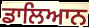
ਡਾਲਿਆਨ